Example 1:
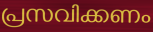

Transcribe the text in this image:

പ്രസവിക്കണം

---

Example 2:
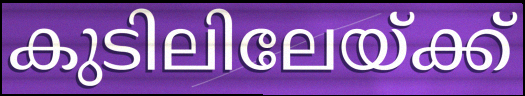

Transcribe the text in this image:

കുടിലിലേയ്ക്ക്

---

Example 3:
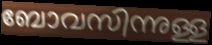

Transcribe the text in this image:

ബോവസിന്നുള്ള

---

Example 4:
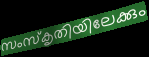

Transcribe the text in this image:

സംസ്കൃതിയിലേക്കും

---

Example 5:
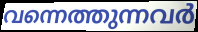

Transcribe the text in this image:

വന്നെത്തുന്നവർ